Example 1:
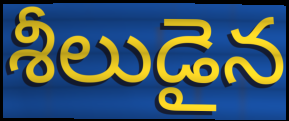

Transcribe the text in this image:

శీలుడైన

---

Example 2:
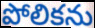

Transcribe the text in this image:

పోలికను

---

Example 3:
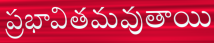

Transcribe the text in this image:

ప్రభావితమవుతాయి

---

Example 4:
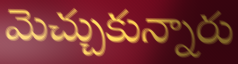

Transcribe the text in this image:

మెచ్చుకున్నారు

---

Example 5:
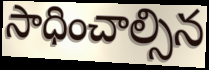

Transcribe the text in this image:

సాధించాల్సిన